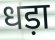
धड़ा